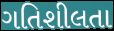
ગતિશીલતા